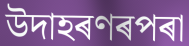
উদাহৰণৰপৰা